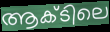
ആക്ടിലെ